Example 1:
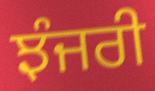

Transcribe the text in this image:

ਝੰਜਰੀ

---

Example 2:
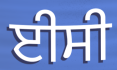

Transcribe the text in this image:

ਈਸੀ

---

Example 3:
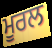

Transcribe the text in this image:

ਮੂਰਲ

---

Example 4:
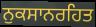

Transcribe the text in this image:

ਨੁਕਸਾਨਰਹਿਤ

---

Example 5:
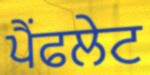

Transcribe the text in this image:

ਪੈਂਫਲੇਟ